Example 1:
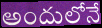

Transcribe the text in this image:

అందులోనే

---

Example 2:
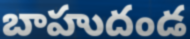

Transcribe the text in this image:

బాహుదండ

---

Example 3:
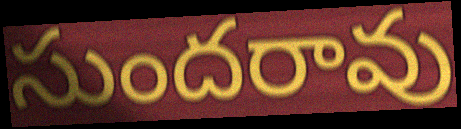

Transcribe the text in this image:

సుందరావు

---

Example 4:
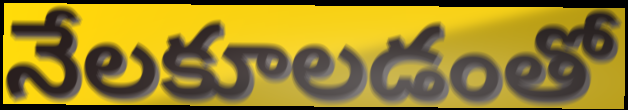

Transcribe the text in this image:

నేలకూలడంతో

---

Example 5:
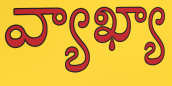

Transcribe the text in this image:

వ్యాఖ్యా